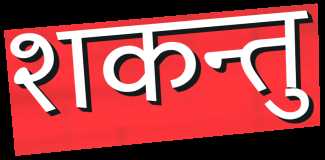
शकन्तु